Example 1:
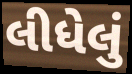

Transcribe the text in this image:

લીધેલું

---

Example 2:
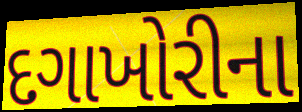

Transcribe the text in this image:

દગાખોરીના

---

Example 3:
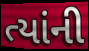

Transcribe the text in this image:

ત્યાંની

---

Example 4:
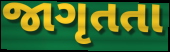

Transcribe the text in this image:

જાગૃતતા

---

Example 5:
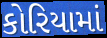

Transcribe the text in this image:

કોરિયામાં